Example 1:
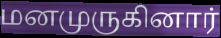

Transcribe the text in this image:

மனமுருகினார்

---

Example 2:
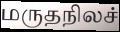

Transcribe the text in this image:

மருதநிலச்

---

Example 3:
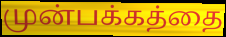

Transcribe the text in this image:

முன்பக்கத்தை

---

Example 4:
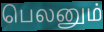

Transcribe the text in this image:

பெலனும்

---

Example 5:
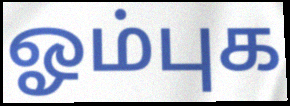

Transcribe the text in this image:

ஓம்புக